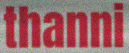
thanni